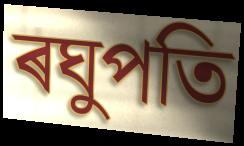
ৰঘুপতি